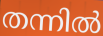
തന്നിൽ